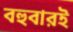
বহুবারই